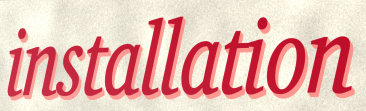
installation